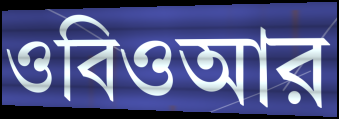
ওবিওআর